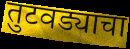
तुटवड्याचा